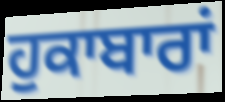
ਹੁਕਾਬਾਰਾਂ